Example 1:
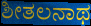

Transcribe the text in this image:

ಶೀತಲನಾಥ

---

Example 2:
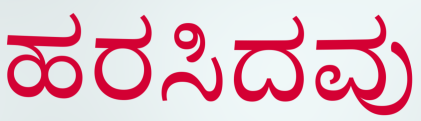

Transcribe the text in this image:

ಹರಸಿದವು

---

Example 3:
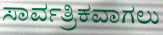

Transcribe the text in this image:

ಸಾರ್ವತ್ರಿಕವಾಗಲು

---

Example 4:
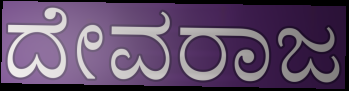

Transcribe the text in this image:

ದೇವರಾಜ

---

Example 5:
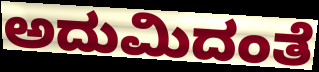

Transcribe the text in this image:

ಅದುಮಿದಂತೆ